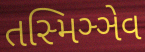
તસ્મિઞ્ઞેવ